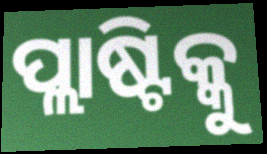
ପ୍ଲାଷ୍ଟିକ୍କୁ